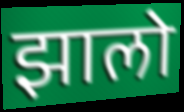
झालो